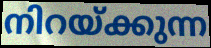
നിറയ്ക്കുന്ന